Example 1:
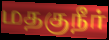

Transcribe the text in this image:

மதகுநீர்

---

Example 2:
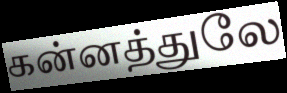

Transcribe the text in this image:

கன்னத்துலே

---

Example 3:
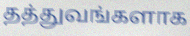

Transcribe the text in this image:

தத்துவங்களாக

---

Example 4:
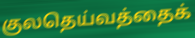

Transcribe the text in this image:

குலதெய்வத்தைக்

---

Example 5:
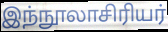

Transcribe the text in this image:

இந்நூலாசிரியர்